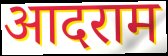
आदराम